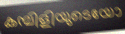
കമ്പിളിയുടെയോ